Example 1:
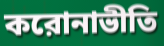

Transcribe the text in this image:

করোনাভীতি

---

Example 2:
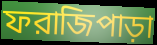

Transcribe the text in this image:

ফরাজিপাড়া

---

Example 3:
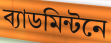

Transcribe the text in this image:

ব্যাডমিন্টনে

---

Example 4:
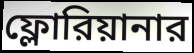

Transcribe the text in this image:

ফ্লোরিয়ানার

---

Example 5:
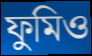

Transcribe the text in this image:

ফুমিও